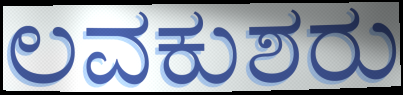
ಲವಕುಶರು